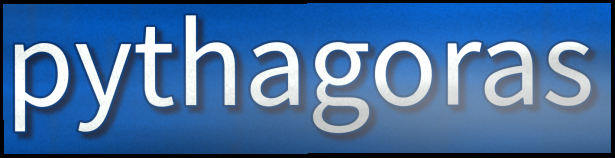
pythagoras